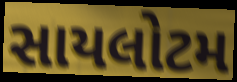
સાયલોટમ